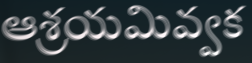
ఆశ్రయమివ్వక